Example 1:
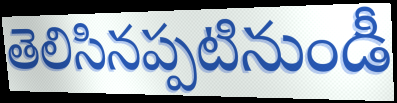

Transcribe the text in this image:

తెలిసినప్పటినుండీ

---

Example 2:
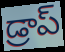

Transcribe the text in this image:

డ్రాప్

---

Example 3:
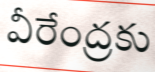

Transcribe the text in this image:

వీరేంద్రకు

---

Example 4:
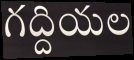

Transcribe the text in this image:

గద్దియల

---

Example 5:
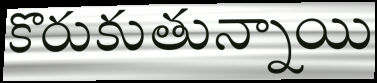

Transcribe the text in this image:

కొరుకుతున్నాయి